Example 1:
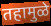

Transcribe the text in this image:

तहामुळे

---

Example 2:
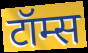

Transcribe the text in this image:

टॉम्स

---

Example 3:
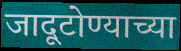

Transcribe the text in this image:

जादूटोण्याच्या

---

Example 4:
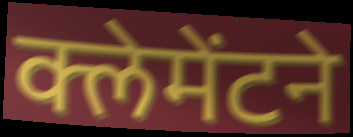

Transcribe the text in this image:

क्लेमेंटने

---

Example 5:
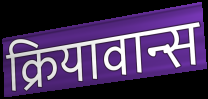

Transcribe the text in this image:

क्रियावान्स